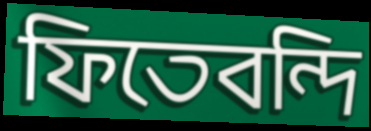
ফিতেবন্দি